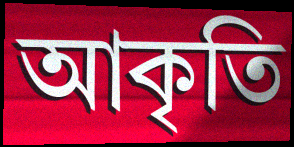
আকৃতি